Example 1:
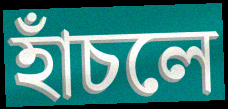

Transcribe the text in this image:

হাঁচলে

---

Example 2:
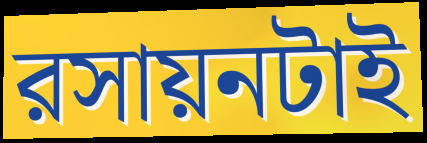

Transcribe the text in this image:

রসায়নটাই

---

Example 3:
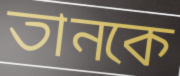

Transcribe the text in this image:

তানকে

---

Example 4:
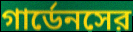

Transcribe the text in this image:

গার্ডেনসের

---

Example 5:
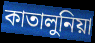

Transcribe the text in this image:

কাতালুনিয়া